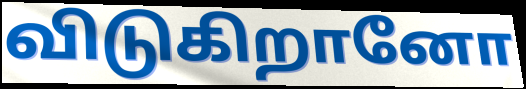
விடுகிறானோ